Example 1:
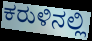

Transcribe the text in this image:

ಕರುಳಿನಲ್ಲಿ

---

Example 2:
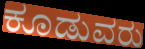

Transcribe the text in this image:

ಕೂಡುವರು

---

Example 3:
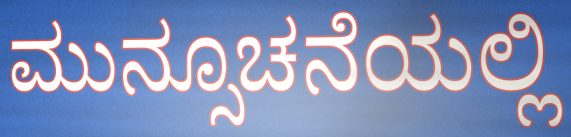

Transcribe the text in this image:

ಮುನ್ಸೂಚನೆಯಲ್ಲಿ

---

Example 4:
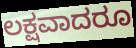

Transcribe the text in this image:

ಲಕ್ಷವಾದರೂ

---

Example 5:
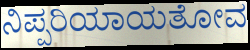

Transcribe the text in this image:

ನಿಪ್ಪರಿಯಾಯತೋವ